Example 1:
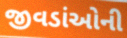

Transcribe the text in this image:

જીવડાંઓની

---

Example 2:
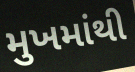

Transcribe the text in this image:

મુખમાંથી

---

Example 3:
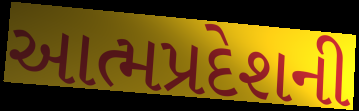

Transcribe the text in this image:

આત્મપ્રદેશની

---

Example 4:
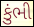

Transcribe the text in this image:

કુંભી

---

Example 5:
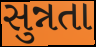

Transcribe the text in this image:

સુન્નતા